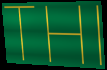
THI